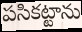
పసికట్టాను